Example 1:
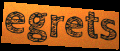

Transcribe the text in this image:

egrets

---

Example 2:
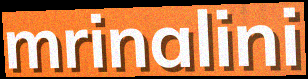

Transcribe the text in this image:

mrinalini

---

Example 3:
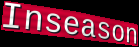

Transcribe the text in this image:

Inseason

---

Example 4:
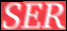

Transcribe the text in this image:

SER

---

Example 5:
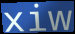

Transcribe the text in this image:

xiw